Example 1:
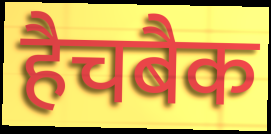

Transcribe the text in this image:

हैचबैक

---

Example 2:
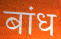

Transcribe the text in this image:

बांध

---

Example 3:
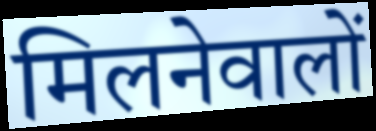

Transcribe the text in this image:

मिलनेवालों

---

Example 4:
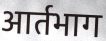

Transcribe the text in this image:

आर्तभाग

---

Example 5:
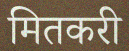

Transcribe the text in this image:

मितकरी